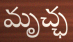
మృచ్ఛ